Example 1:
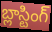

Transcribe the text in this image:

బ్లాస్టింగ్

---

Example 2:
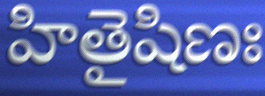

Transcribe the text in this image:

హితైషిణః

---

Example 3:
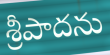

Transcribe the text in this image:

శ్రీపాదను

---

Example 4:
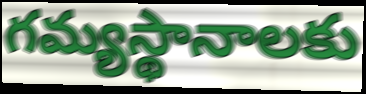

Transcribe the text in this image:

గమ్యస్థానాలకు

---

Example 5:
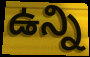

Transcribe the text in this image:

ఉన్ని